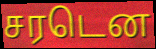
சரடென